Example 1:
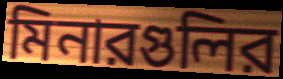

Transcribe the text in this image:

মিনারগুলির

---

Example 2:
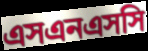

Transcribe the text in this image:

এসএনএসসি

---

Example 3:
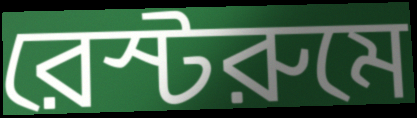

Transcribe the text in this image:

রেস্টরুমে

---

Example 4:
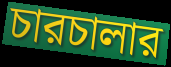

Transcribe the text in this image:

চারচালার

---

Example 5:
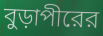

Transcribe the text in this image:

বুড়াপীরের